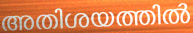
അതിശയത്തിൽ